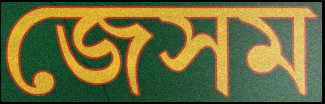
জেসম